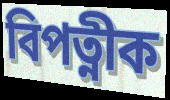
বিপত্নীক